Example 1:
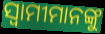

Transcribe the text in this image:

ସ୍ବାମୀମାନଙ୍କୁ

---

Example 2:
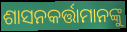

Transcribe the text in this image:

ଶାସନକର୍ତ୍ତାମାନଙ୍କୁ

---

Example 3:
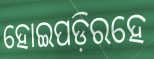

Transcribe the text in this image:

ହୋଇପଡ଼ିରହେ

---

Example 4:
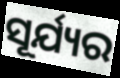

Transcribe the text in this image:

ସୂର୍ଯ୍ୟର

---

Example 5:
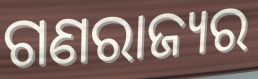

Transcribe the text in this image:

ଗଣରାଜ୍ୟର